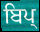
ਬਿਪ੍